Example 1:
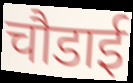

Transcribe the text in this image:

चौडाई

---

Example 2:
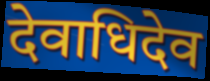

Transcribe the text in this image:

देवाधिदेव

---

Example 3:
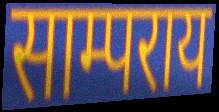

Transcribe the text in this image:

साम्पराय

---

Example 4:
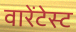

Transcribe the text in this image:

वारेंटेस्ट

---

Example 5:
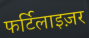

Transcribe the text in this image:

फर्टिलाइज़र